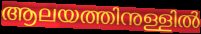
ആലയത്തിനുള്ളിൽ